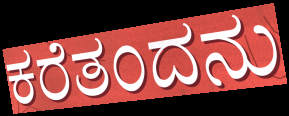
ಕರೆತಂದನು